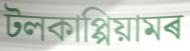
টলকাপ্পিয়ামৰ